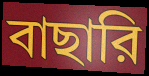
বাছারি